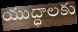
యుద్ధాలకు